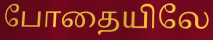
போதையிலே